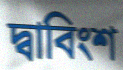
দ্বাবিংশ